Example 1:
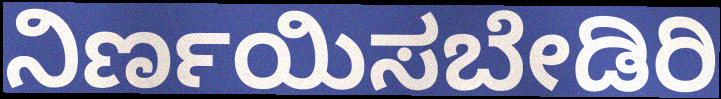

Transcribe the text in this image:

ನಿರ್ಣಯಿಸಬೇಡಿರಿ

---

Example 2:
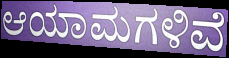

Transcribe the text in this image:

ಆಯಾಮಗಳಿವೆ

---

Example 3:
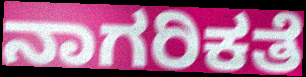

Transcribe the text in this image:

ನಾಗರಿಕತೆ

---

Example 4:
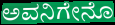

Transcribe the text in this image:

ಅವನಿಗೇನೊ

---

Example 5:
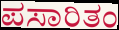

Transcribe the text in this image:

ಪಸಾರಿತಂ